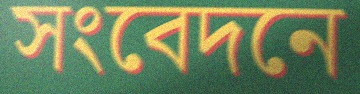
সংবেদনে